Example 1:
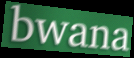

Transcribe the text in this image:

bwana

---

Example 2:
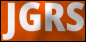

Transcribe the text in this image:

JGRS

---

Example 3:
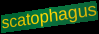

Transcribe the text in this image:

scatophagus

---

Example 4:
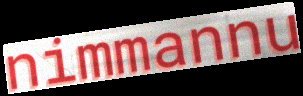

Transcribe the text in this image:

nimmannu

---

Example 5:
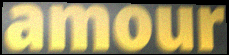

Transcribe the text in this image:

amour